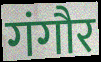
गंगौर